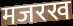
मजरख